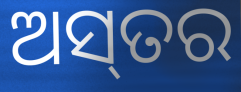
ଅସ୍‌ତର